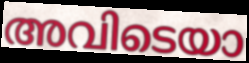
അവിടെയാ